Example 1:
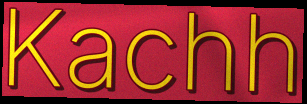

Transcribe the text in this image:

Kachh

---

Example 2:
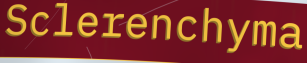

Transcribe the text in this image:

Sclerenchyma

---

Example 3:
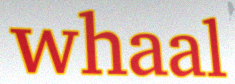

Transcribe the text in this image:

whaal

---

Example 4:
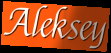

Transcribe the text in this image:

Aleksey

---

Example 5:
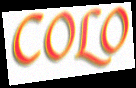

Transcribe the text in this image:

COLO